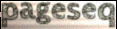
pageseq